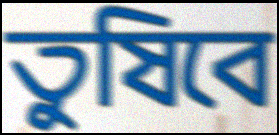
তুষিবে